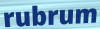
rubrum